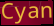
Cyan